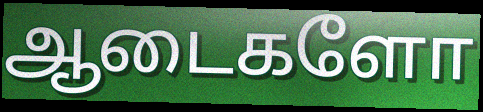
ஆடைகளோ